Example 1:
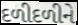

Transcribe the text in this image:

દળીદળીને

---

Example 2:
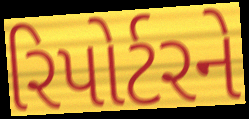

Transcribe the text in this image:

રિપોર્ટરને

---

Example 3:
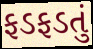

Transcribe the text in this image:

ફડફડતું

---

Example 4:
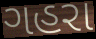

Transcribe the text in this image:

ગહરા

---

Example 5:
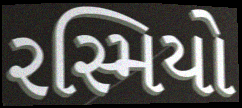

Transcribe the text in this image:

રસ્મિયો